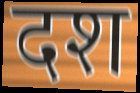
दश